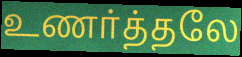
உணர்த்தலே